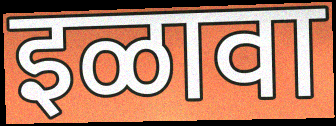
इळावा